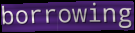
borrowing